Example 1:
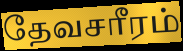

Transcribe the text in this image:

தேவசரீரம்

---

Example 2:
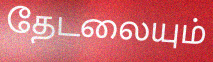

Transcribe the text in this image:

தேடலையும்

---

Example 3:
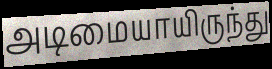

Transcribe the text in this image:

அடிமையாயிருந்து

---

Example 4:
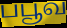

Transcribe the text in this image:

பபூவ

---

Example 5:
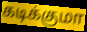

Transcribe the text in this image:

கடிக்குமா